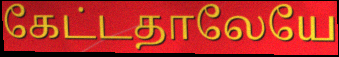
கேட்டதாலேயே